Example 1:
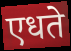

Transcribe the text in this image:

एधते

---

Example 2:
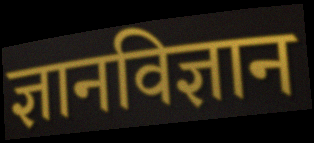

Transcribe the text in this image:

ज्ञानविज्ञान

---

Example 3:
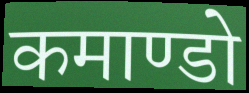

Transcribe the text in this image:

कमाण्डो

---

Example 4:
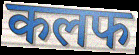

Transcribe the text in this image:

कलफ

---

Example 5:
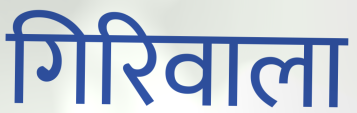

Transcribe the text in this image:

गिरिवाला